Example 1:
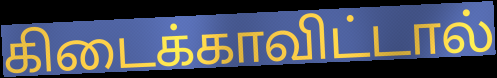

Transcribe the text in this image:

கிடைக்காவிட்டால்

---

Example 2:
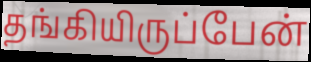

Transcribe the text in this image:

தங்கியிருப்பேன்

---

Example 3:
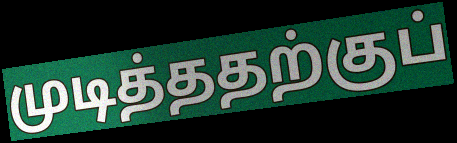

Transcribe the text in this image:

முடித்ததற்குப்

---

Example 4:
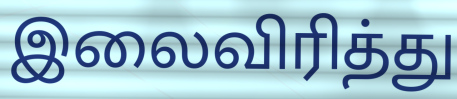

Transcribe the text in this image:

இலைவிரித்து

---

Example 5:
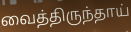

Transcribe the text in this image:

வைத்திருந்தாய்